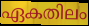
ഏകതിലം